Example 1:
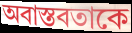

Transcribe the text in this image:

অবাস্তবতাকে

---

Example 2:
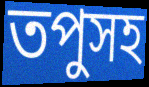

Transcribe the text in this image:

তপুসহ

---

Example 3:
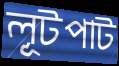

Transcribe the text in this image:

লূটপাট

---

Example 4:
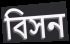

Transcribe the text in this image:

বিসন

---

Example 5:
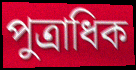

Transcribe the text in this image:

পুত্রাধিক